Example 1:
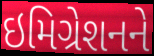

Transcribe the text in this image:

ઇમિગ્રેશનને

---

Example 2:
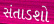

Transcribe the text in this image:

સંતાડશો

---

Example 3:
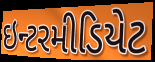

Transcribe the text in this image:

ઇન્ટરમીડિયેટ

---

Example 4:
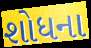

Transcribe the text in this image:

શોધના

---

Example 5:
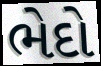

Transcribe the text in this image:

ભેદો